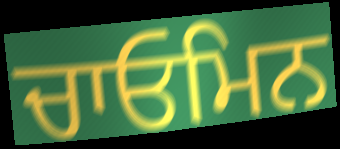
ਚਾਓਮਿਨ